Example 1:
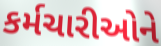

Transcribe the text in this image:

કર્મચારીઓને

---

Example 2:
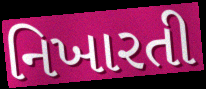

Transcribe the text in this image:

નિખારતી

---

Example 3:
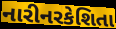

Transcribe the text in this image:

નારીનરકેશિતા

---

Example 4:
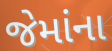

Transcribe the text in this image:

જેમાંના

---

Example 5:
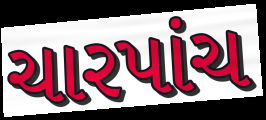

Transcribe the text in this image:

ચારપાંચ